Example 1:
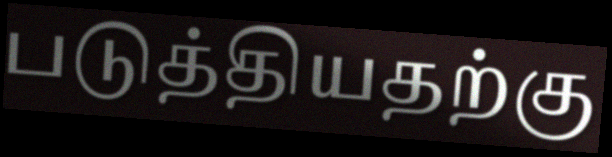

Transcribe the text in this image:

படுத்தியதற்கு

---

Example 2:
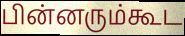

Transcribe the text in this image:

பின்னரும்கூட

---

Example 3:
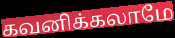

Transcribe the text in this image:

கவனிக்கலாமே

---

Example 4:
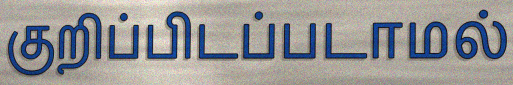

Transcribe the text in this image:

குறிப்பிடப்படாமல்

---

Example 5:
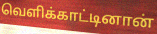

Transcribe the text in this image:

வெளிக்காட்டினான்